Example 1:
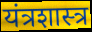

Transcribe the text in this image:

यंत्रशास्त्र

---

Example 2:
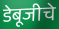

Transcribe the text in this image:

डेबूजीचे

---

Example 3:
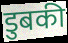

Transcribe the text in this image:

डुबकी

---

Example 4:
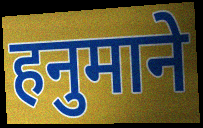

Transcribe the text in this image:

हनुमाने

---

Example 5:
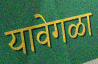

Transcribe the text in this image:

यावेगळा